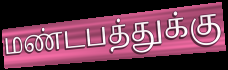
மண்டபத்துக்கு